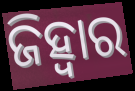
ଜିହ୍ଵାର